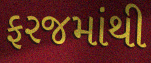
ફરજમાંથી